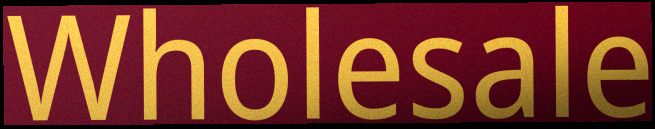
Wholesale